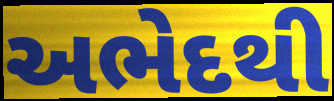
અભેદથી